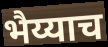
भैय्याच